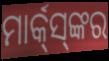
ମାର୍କ୍‌ସ୍‌ଙ୍କର